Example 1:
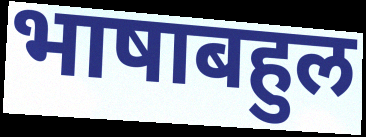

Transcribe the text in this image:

भाषाबहुल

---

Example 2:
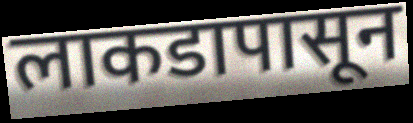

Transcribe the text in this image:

लाकडापासून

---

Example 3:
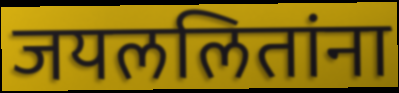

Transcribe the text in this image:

जयललितांना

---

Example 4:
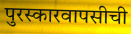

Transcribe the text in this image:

पुरस्कारवापसीची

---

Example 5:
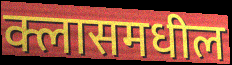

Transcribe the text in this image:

क्लासमधील